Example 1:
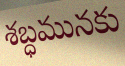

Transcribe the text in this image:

శబ్ధమునకు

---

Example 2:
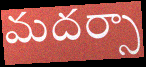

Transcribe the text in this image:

మదర్సా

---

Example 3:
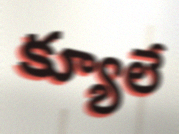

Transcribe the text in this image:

క్యూలే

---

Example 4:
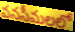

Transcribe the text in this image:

వనసీమలలో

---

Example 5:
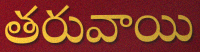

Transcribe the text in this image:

తరువాయి